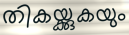
തികയ്ക്കുകയും